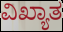
ವಿಖ್ಯಾತ